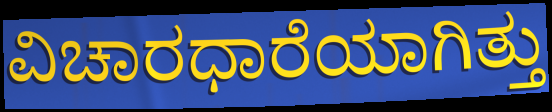
ವಿಚಾರಧಾರೆಯಾಗಿತ್ತು